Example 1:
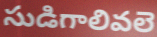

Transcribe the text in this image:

సుడిగాలివలె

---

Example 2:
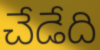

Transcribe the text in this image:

చేడేది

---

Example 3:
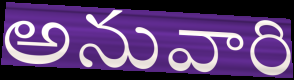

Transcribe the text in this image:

అనువారి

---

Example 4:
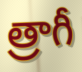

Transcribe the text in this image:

త్రాగీ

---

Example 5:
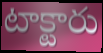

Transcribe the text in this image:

టాక్టారు